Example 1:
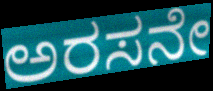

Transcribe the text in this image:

ಅರಸನೇ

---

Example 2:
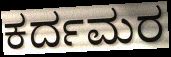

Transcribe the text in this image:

ಕರ್ದಮರ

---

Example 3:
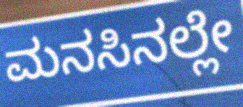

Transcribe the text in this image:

ಮನಸಿನಲ್ಲೇ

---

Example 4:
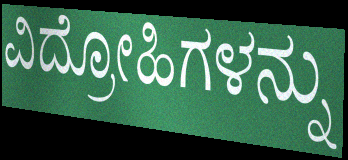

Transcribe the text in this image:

ವಿದ್ರೋಹಿಗಳನ್ನು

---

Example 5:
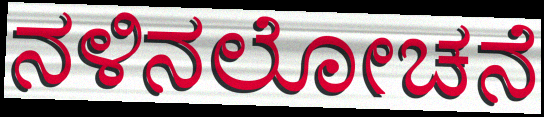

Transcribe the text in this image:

ನಳಿನಲೋಚನೆ